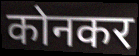
कोनकर